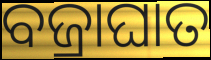
ବଜ୍ରାଘାତ